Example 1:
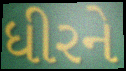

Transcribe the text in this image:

ધીરને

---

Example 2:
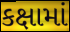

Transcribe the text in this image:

કક્ષામાં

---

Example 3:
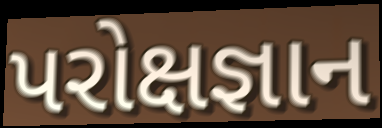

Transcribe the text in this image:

પરોક્ષજ્ઞાન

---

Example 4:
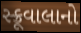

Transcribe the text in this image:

સ્ક્રૂવાલાનો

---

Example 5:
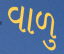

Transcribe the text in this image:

વાળુ